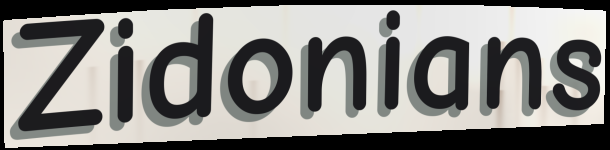
Zidonians